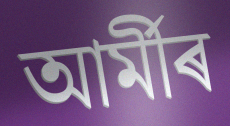
আৰ্মীৰ